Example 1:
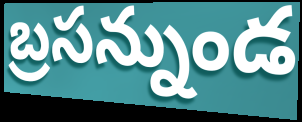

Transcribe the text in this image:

బ్రసన్నుండ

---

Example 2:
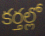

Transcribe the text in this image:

కర్తల్లో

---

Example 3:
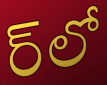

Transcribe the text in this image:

ర్‌లో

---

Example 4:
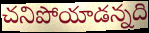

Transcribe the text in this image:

చనిపోయాడన్నది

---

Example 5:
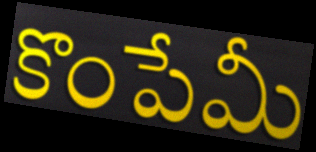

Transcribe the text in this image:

కొంపేమీ